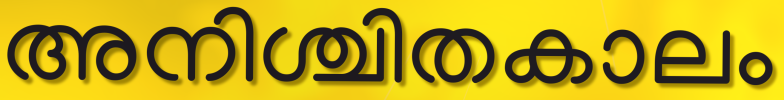
അനിശ്ചിതകാലം